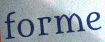
forme